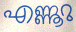
എണ്ണൂറു